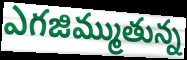
ఎగజిమ్ముతున్న